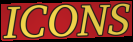
ICONS